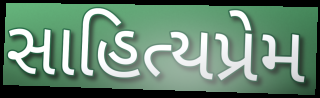
સાહિત્યપ્રેમ